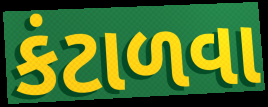
કંટાળવા